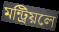
মন্ট্রিয়লে